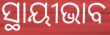
ସ୍ଥାୟୀଭାବ